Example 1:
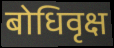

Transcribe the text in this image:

बोधिवृक्ष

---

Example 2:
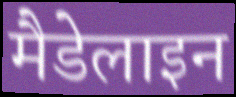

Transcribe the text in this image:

मैडेलाइन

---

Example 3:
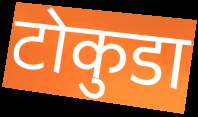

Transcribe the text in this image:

टोकुडा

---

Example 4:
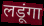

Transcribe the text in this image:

लडूंगा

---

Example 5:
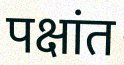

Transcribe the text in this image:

पक्षांत